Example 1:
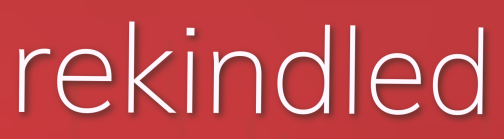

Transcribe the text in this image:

rekindled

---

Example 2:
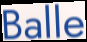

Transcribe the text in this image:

Balle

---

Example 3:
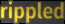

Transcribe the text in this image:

rippled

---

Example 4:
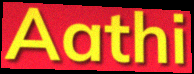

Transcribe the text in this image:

Aathi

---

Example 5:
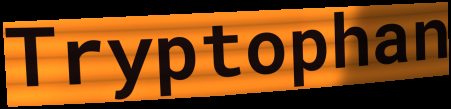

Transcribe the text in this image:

Tryptophan